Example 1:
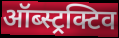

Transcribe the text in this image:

ऑब्स्ट्रक्टिव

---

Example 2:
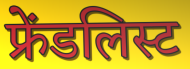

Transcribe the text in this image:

फ्रेंडलिस्ट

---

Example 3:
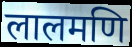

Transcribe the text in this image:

लालमणि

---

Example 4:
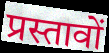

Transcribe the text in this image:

प्रस्‍तावों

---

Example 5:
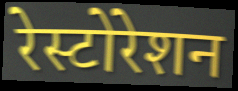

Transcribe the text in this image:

रेस्टोरेशन